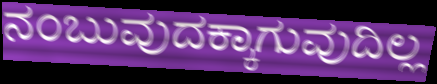
ನಂಬುವುದಕ್ಕಾಗುವುದಿಲ್ಲ